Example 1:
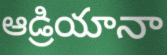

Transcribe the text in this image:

ఆడ్రియానా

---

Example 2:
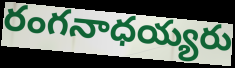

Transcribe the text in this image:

రంగనాధయ్యరు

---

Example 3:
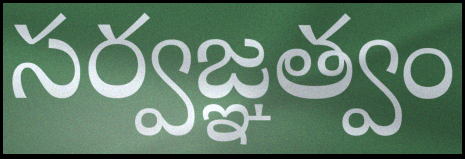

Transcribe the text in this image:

సర్వజ్ఞత్వం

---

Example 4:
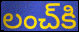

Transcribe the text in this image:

లంచ్‌కి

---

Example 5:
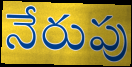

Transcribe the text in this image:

నేరుపు